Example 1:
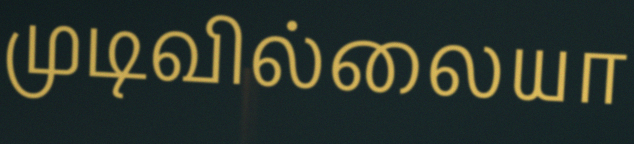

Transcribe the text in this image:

முடிவில்லையா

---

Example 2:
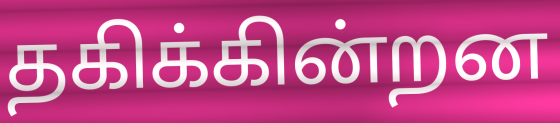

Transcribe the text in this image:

தகிக்கின்றன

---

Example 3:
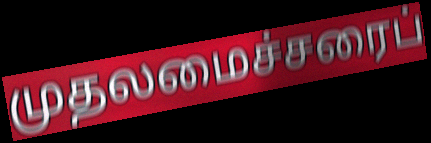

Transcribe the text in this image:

முதலமைச்சரைப்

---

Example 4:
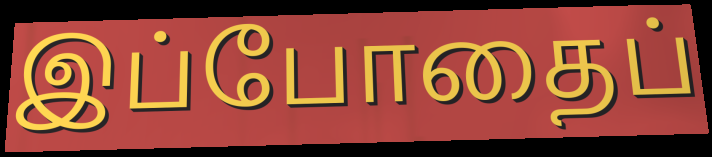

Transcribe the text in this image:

இப்போதைப்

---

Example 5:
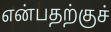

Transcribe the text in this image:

என்பதற்குச்